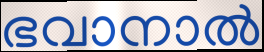
ഭവാനാൽ